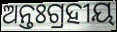
ଅନ୍ତଃଗ୍ରହୀୟ